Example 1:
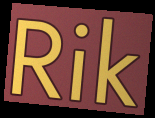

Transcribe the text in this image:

Rik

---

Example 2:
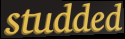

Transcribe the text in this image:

studded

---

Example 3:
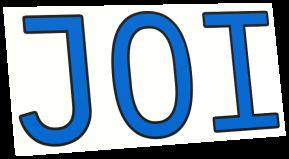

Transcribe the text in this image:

JOI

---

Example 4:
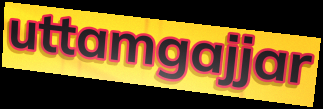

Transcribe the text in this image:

uttamgajjar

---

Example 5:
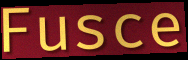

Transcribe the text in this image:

Fusce